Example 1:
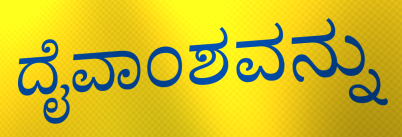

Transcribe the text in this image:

ದೈವಾಂಶವನ್ನು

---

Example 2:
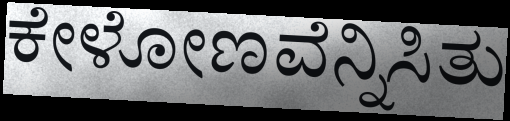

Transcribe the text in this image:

ಕೇಳೋಣವೆನ್ನಿಸಿತು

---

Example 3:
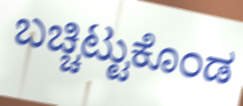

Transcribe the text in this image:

ಬಚ್ಚಿಟ್ಟುಕೊಂಡ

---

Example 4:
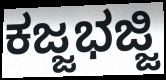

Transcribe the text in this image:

ಕಜ್ಜಭಜ್ಜಿ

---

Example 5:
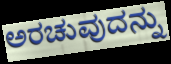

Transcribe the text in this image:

ಅರಚುವುದನ್ನು